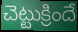
చెట్టుక్రిందే